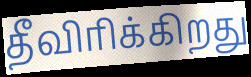
தீவிரிக்கிறது